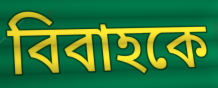
বিবাহকে